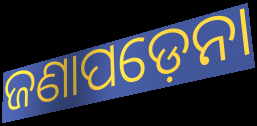
ଜଣାପଡ଼େନା